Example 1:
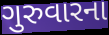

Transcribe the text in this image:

ગુરુવારના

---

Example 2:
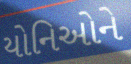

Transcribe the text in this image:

યોનિઓને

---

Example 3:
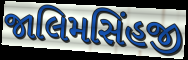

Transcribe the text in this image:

જાલિમસિંહજી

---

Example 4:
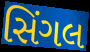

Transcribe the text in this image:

સિંગલ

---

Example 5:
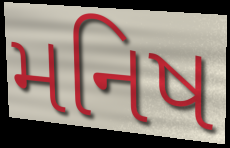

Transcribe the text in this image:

મનિષ